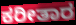
ಕರೀತಾರ